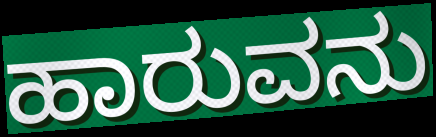
ಹಾರುವನು